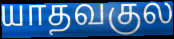
யாதவகுல